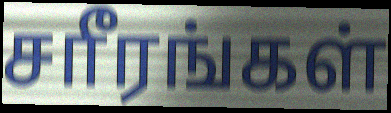
சரீரங்கள்